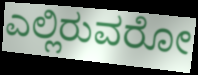
ಎಲ್ಲಿರುವರೋ